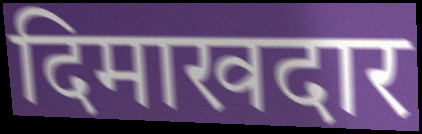
दिमाखदार